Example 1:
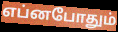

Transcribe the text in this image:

எப்னபோதும்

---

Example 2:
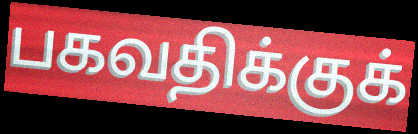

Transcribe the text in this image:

பகவதிக்குக்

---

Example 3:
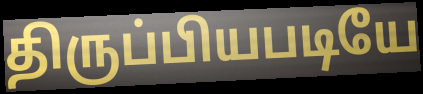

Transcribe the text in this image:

திருப்பியபடியே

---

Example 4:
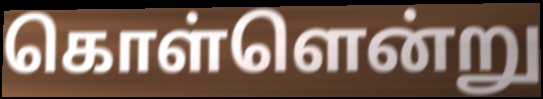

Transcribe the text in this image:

கொள்ளென்று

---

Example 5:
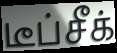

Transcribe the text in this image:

டீப்சீக்